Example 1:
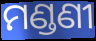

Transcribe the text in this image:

ମଣ୍ଡଣୀ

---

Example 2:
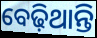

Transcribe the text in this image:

ବେଢ଼ିଥାନ୍ତି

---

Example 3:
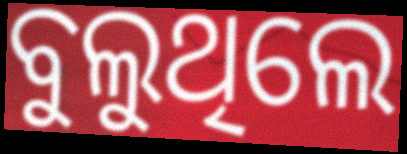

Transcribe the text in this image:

ବୁଲୁଥିଲେ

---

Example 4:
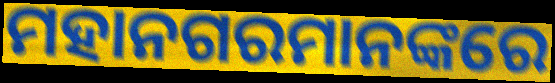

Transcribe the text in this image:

ମହାନଗରମାନଙ୍କରେ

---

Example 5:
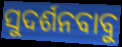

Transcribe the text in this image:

ସୁଦର୍ଶନବାବୁ